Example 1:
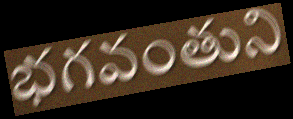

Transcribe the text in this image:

భగవంతుని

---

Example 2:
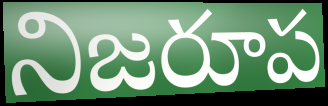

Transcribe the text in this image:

నిజరూప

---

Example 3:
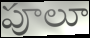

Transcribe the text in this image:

పూలూ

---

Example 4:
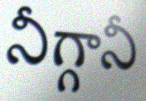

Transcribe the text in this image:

నీగ్గానీ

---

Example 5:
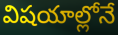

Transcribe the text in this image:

విషయాల్లోనే